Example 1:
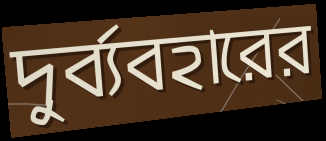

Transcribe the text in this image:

দুর্ব্যবহারের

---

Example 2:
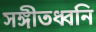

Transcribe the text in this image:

সঙ্গীতধ্বনি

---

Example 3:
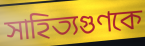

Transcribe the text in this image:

সাহিত্যগুণকে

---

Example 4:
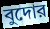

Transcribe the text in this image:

বুদোর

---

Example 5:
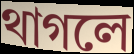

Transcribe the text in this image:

থাগলে